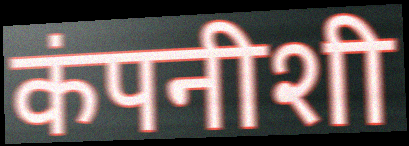
कंपनीशी